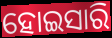
ହୋଇସାରି